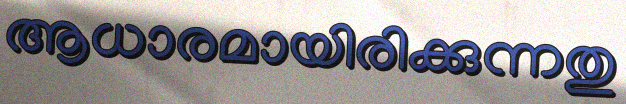
ആധാരമായിരിക്കുന്നതു